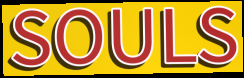
SOULS